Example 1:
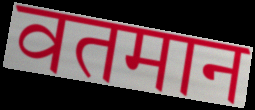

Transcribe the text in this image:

वतमान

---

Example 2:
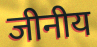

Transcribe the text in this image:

जीनीय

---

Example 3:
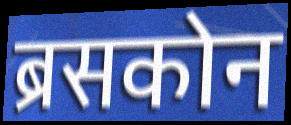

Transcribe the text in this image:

ब्रसकोन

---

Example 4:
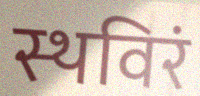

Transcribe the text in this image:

स्थविरं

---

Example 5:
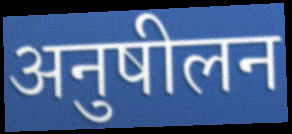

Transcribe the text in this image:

अनुषीलन